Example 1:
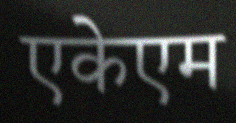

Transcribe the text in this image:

एकेएम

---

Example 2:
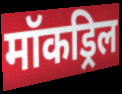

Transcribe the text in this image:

मॉकड्रिल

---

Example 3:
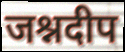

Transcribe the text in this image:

जश्नदीप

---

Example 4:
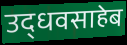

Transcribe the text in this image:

उद्धवसाहेब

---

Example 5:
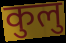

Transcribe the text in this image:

कुलु